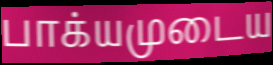
பாக்யமுடைய